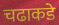
चढाकडे